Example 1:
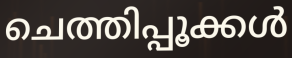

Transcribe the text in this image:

ചെത്തിപ്പൂക്കൾ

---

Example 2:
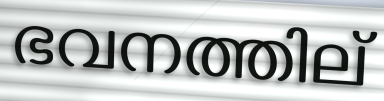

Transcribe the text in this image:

ഭവനത്തില്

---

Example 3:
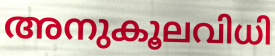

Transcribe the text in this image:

അനുകൂലവിധി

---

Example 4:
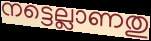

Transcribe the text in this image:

നട്ടെല്ലാണതു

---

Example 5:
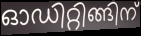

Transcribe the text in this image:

ഓഡിറ്റിങ്ങിന്